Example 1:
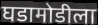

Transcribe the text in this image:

घडामोडीला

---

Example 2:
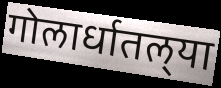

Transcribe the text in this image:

गोलार्धातल्या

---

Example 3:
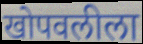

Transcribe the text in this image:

खोपवलीला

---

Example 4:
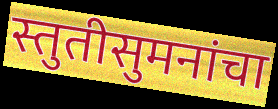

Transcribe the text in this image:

स्तुतीसुमनांचा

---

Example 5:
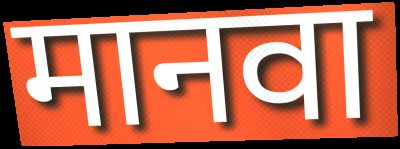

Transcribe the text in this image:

मानवा